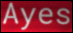
Ayes